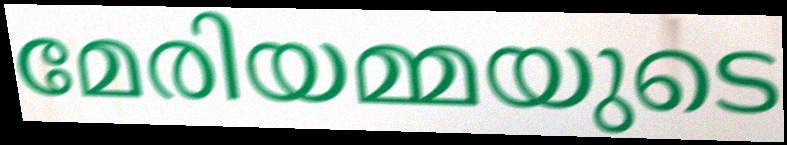
മേരിയമ്മയുടെ